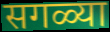
सगळ्या